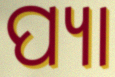
ପ୍ୟା